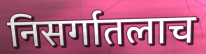
निसर्गातलाच